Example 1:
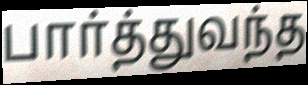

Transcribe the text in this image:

பார்த்துவந்த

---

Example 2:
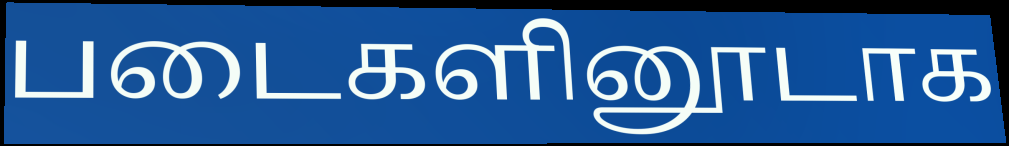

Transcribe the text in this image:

படைகளினூடாக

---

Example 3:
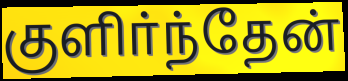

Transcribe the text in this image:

குளிர்ந்தேன்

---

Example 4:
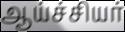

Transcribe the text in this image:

ஆய்ச்சியர்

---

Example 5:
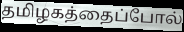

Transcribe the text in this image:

தமிழகத்தைப்போல்